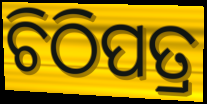
ଚିଠିପତ୍ର